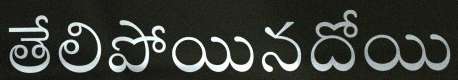
తేలిపోయినదోయి